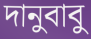
দানুবাবু